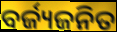
ବର୍ଜ୍ୟଜନିତ